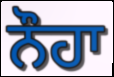
ਨੌਹਾ